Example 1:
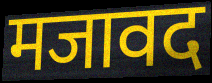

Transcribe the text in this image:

मजावद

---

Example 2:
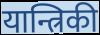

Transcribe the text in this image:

यान्त्रिकी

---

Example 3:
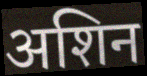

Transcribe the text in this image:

अशिन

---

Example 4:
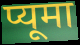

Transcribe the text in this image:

प्यूमा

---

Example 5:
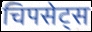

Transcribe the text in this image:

चिपसेट्स